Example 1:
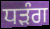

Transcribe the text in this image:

ਧੜੰਗ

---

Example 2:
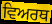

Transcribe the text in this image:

ਵਿਅਰਥ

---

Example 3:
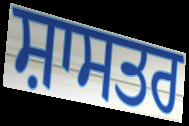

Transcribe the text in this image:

ਸ਼ਾਸਤਰ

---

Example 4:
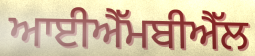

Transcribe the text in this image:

ਆਈਐੱਮਬੀਐੱਲ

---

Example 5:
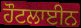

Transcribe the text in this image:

ਹੌਟਲਾਈਨ